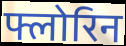
फ्लोरिन